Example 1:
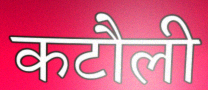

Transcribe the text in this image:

कटौली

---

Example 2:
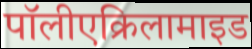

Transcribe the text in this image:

पॉलीएक्रिलामाइड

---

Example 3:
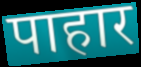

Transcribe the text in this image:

पाहार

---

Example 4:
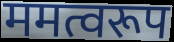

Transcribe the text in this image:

ममत्वरूप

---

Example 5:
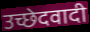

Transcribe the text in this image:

उच्छेदवादी